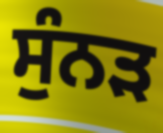
ਸੁੰਨੜ